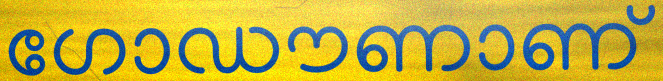
ഗോഡൗണാണ്